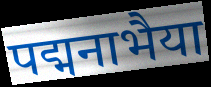
पद्मनाभैया